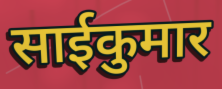
साईकुमार